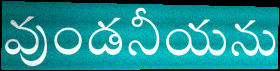
వుండనీయను